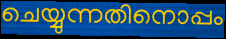
ചെയ്യുന്നതിനൊപ്പം